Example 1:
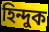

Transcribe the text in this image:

হিন্দুক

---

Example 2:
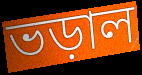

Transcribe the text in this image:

ভড়াল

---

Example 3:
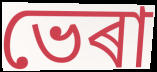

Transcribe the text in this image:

ভেৰা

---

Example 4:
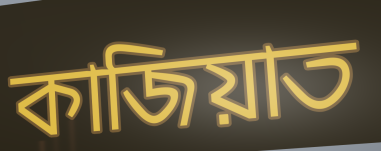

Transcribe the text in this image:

কাজিয়াত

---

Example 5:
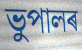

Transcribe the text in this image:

ভুপালৰ